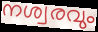
നശ്വരവും